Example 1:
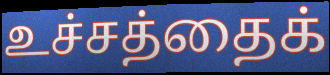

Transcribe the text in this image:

உச்சத்தைக்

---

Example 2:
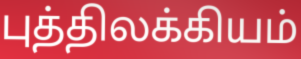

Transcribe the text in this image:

புத்திலக்கியம்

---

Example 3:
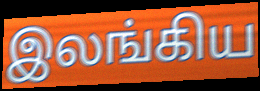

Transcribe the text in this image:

இலங்கிய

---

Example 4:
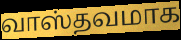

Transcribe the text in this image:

வாஸ்தவமாக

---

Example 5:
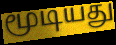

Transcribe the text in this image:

மூடியது